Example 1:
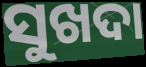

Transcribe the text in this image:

ସୁଖଦା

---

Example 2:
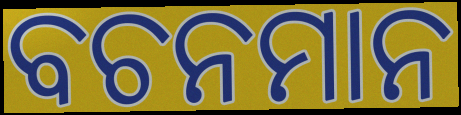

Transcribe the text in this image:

ବଚନମାନ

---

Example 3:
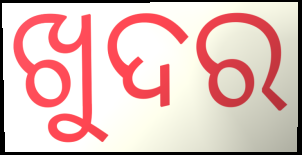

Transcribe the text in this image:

ଖୁଦର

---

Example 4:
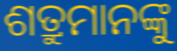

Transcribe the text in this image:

ଶତ୍ରୁମାନଙ୍କୁ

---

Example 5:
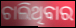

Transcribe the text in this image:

ଚାଲିଥିବାର